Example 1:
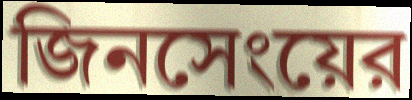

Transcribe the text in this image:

জিনসেংয়ের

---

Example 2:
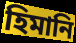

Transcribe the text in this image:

হিমানি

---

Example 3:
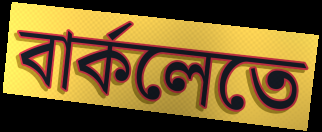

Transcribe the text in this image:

বার্কলেতে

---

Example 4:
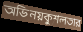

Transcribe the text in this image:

অভিনয়কুশলতার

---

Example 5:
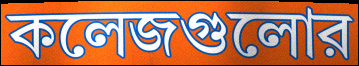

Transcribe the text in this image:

কলেজগুলোর